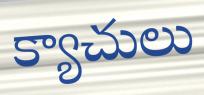
క్యాచులు